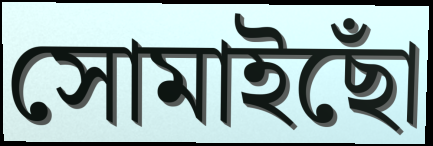
সোমাইছোঁ